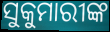
ସୁକୁମାରୀଙ୍କ